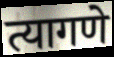
त्यागणे